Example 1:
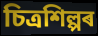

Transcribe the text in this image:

চিত্ৰশিল্পৰ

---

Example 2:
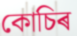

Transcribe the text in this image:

কোচিৰ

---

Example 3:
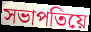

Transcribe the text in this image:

সভাপতিয়ে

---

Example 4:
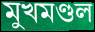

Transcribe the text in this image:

মুখমণ্ডল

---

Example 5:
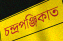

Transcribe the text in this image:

চন্দ্ৰপঞ্জিকাত